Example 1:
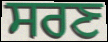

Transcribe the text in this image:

ਸਰਣ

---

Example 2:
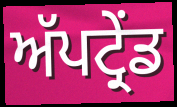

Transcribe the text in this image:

ਅੱਪਟ੍ਰੇਂਡ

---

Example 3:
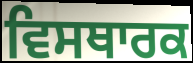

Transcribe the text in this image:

ਵਿਸਥਾਰਕ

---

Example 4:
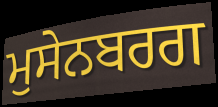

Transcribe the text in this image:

ਮੁਸੇਨਬਰਗ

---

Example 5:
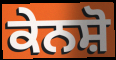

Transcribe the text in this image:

ਕੇਨਸ਼ੋ